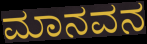
ಮಾನವನ